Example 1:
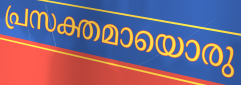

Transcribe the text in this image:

പ്രസക്തമായൊരു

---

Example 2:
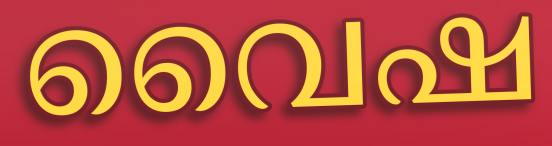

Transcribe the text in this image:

വൈഷ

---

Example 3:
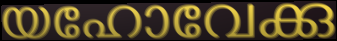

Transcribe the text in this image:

യഹോവേക്കു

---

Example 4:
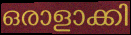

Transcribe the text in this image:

ഒരാളാക്കി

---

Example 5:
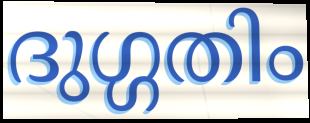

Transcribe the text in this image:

ദുഗ്ഗതിം